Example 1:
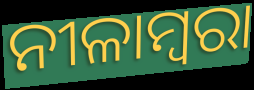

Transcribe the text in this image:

ନୀଳାମ୍ବରା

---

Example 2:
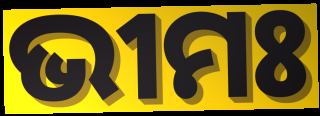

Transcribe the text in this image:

ଭୀମଃ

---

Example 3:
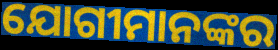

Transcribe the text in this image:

ଯୋଗୀମାନଙ୍କର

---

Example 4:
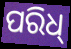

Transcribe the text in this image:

ପରିଧ୍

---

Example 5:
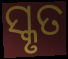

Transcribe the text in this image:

ସ୍କୃତ